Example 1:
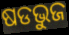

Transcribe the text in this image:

ଷଡଭୁଜ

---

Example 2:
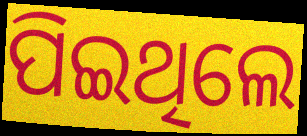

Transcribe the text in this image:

ପିଇଥିଲେ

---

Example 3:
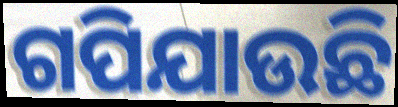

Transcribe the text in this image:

ଗପିଯାଉଛି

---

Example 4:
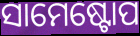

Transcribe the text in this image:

ସାମେଷ୍ଟୋପ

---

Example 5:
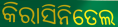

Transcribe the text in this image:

କିରାସିନିତେଲ